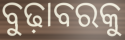
ବୁଢ଼ାବରକୁ